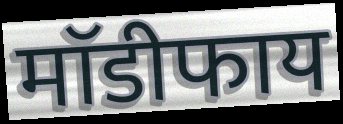
मॉडीफाय